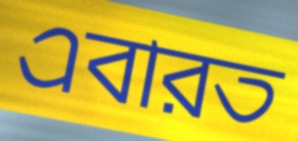
এবারত